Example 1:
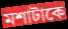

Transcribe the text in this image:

মশাটাকে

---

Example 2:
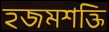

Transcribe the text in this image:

হজমশক্তি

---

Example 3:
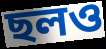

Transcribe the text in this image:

ছলও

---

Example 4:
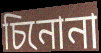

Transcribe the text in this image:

চিনোনা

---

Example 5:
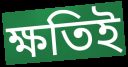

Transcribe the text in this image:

ক্ষতিই